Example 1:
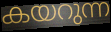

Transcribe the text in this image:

കയറുന്ന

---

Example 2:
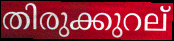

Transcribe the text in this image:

തിരുക്കുറല്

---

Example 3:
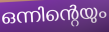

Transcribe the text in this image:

ഒന്നിന്റെയും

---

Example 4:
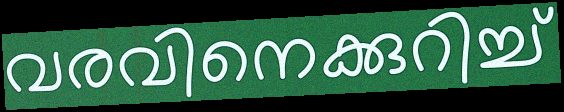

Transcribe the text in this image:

വരവിനെക്കുറിച്ച്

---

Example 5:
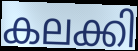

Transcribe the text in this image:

കലക്കി